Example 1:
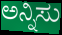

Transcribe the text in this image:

ಅನ್ನಿಸು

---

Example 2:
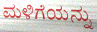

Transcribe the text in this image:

ಮಳಿಗೆಯನ್ನು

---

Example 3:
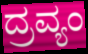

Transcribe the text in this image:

ದ್ರವ್ಯಂ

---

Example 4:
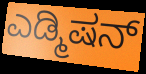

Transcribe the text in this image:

ಎಡ್ಮಿಷನ್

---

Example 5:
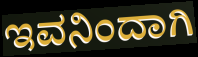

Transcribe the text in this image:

ಇವನಿಂದಾಗಿ